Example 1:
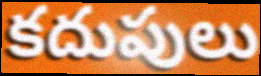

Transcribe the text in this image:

కదుపులు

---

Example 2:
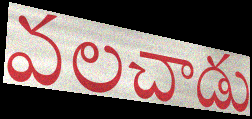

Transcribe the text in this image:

వలచాడు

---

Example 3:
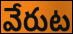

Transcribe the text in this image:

వేరుట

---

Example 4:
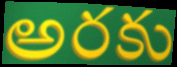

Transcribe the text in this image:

అరకు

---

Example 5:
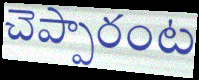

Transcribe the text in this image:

చెప్పారంట